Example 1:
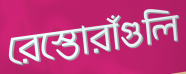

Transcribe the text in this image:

রেস্তোরাঁগুলি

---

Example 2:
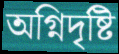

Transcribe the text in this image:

অগ্নিদৃষ্টি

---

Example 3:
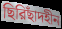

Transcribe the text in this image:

ছিরিছাঁদহীন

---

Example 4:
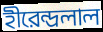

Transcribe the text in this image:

হীরেন্দ্রলাল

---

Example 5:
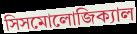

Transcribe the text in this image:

সিসমোলোজিক্যাল